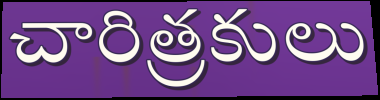
చారిత్రకులు